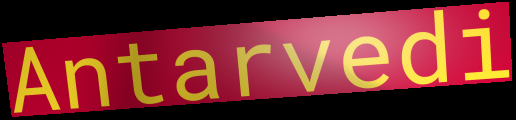
Antarvedi